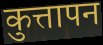
कुत्तापन